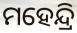
ମହେନ୍ଦ୍ରି